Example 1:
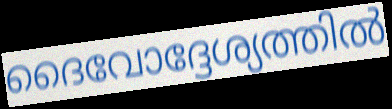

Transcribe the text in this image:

ദൈവോദ്ദേശ്യത്തിൽ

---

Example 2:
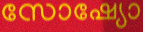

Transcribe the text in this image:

സോഷ്യോ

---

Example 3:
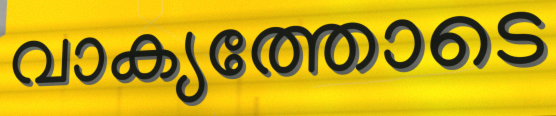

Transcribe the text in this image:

വാക്യത്തോടെ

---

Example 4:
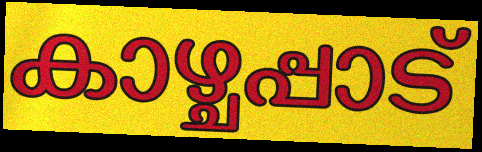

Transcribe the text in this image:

കാഴ്ചപ്പാട്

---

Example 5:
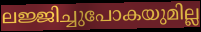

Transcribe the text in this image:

ലജ്ജിച്ചുപോകയുമില്ല